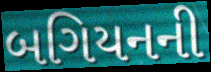
બગિયનની